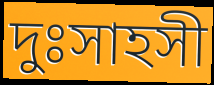
দুঃসাহসী